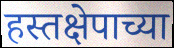
हस्तक्षेपाच्या